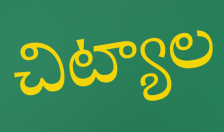
చిట్యాల